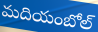
మదియంబోల్